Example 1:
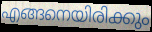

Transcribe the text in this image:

എങ്ങനെയിരിക്കും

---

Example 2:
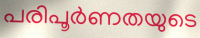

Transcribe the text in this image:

പരിപൂർണതയുടെ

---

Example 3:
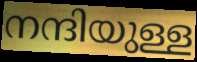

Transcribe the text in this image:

നന്ദിയുള്ള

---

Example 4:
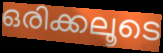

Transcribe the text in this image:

ഒരിക്കലൂടെ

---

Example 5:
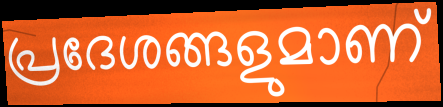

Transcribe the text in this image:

പ്രദേശങ്ങളുമാണ്